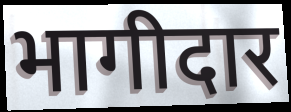
भागीदार